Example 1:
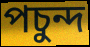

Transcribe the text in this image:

পচুন্দ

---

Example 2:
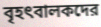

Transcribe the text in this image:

বৃহৎবালকদের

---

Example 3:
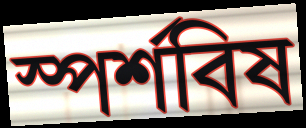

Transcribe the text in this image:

স্পর্শবিষ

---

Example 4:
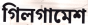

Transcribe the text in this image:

গিলগামেশ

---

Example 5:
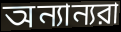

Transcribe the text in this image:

অন্যান্যরা